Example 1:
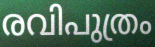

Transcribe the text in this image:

രവിപുത്രം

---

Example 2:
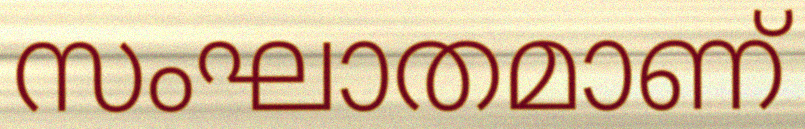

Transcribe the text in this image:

സംഘാതമാണ്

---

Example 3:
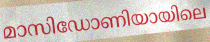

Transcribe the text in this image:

മാസിഡോണിയായിലെ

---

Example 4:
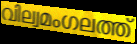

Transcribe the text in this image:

വില്വമംഗലത്ത്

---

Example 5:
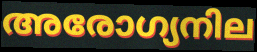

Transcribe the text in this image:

അരോഗ്യനില